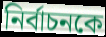
নির্বাচনকে